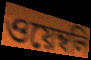
ওয়েম্বলি